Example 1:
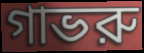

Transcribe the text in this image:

গাভরু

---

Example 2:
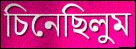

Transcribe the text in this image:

চিনেছিলুম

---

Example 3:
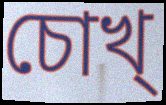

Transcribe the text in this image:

চোখ্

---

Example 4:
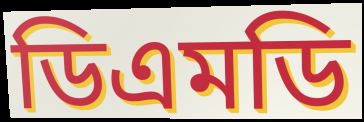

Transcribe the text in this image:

ডিএমডি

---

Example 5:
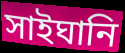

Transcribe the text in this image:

সাইঘানি